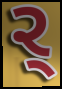
ર્